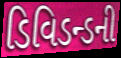
ડિવિડન્ડની